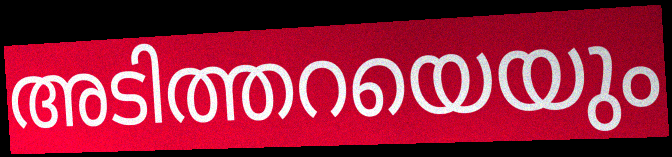
അടിത്തറയെയും